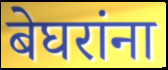
बेघरांना